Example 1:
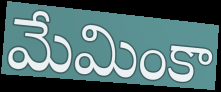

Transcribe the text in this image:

మేమింకా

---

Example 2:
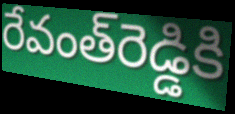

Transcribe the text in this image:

రేవంత్‌రెడ్డికి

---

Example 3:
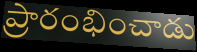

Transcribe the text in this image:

ప్రారంభించాడు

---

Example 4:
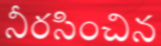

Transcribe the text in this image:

నీరసించిన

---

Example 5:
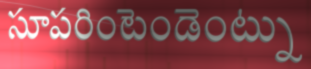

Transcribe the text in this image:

సూపరింటెండెంట్ను